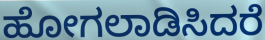
ಹೋಗಲಾಡಿಸಿದರೆ